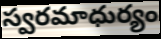
స్వరమాధుర్యం